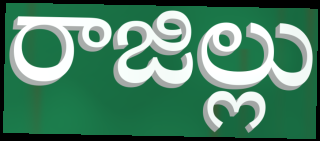
రాజిల్లు